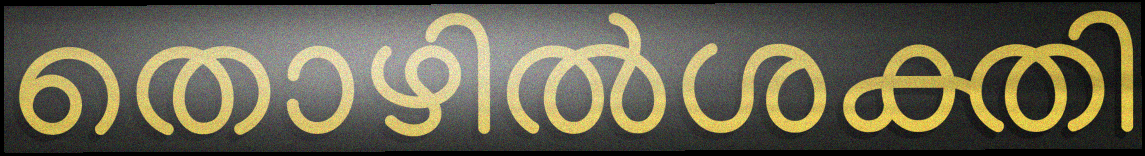
തൊഴിൽശക്തി